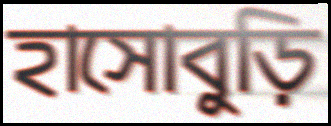
হাসোবুড়ি